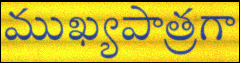
ముఖ్యపాత్రగా